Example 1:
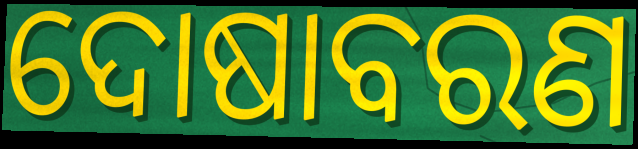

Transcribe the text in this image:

ଦୋଷାବରଣ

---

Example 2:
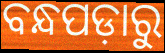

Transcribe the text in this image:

ବନ୍ଧପଡ଼ାରୁ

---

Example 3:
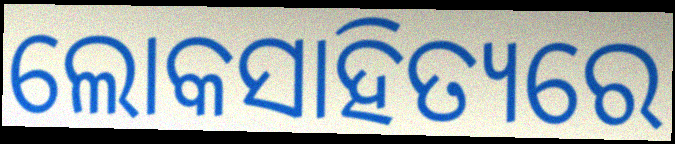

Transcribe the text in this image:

ଲୋକସାହିତ୍ୟରେ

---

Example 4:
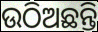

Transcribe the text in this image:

ଉଠିଅଛନ୍ତି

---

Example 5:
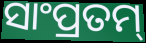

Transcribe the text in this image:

ସାଂପ୍ରତମ୍